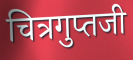
चित्रगुप्तजी